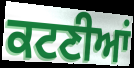
ਕਟਣੀਆਂ